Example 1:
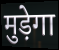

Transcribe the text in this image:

मुड़ेगा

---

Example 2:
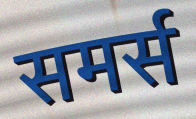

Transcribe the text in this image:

समर्स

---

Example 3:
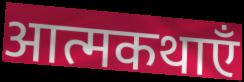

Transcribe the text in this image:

आत्मकथाएँ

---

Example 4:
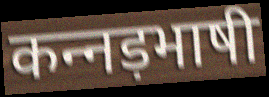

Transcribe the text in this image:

कन्नड़भाषी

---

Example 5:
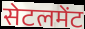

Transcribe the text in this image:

सेटलमेंट